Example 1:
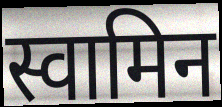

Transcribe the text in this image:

स्वामिन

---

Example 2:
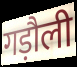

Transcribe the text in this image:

गड़ौली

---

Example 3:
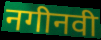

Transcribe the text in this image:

नगीनवी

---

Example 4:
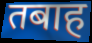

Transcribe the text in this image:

तबाह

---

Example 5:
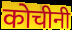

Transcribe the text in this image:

कोचीनी